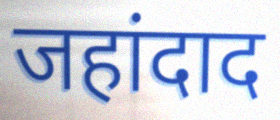
जहांदाद